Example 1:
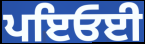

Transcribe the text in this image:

ਪਇਓਈ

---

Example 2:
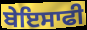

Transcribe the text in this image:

ਬੇਇਸਾਫੀ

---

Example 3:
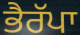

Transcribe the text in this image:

ਭੈਰੱਪਾ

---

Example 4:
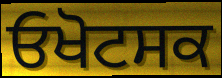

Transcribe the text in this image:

ਓਖੋਟਸਕ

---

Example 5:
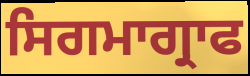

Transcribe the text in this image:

ਸਿਗਮਾਗ੍ਰਾਫ